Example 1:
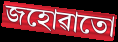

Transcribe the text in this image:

জহোৱাতো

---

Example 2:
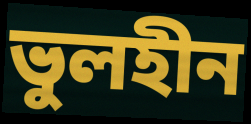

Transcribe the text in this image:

ভুলহীন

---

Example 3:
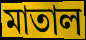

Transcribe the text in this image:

মাতাল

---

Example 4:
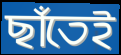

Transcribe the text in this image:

ছাঁতেই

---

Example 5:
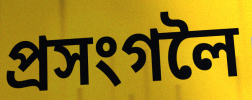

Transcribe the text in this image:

প্ৰসংগলৈ